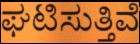
ಘಟಿಸುತ್ತಿವೆ